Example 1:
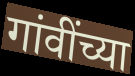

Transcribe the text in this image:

गांवींच्या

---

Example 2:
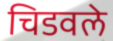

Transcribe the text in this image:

चिडवले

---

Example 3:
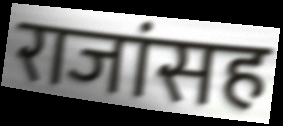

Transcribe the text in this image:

राजांसह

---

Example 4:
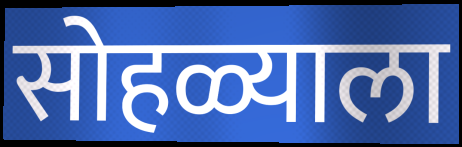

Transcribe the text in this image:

सोहळ्याला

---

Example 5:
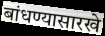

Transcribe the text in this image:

बांधण्यासारखे